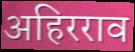
अहिरराव